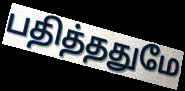
பதித்ததுமே